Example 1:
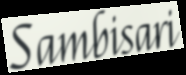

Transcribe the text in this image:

Sambisari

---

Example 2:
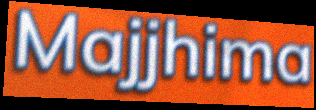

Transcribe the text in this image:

Majjhima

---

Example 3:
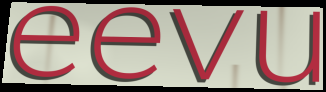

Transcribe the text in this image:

eevu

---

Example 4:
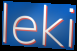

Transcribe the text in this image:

leki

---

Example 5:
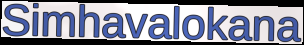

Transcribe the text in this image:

Simhavalokana